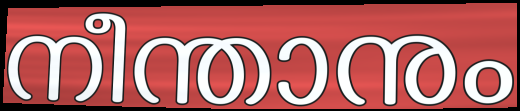
നീന്താനും